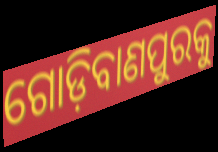
ଗୋଡ଼ିବାଣପୁରକୁ